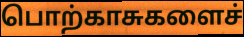
பொற்காசுகளைச்